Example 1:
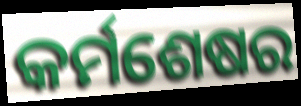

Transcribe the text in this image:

କର୍ମଶେଷର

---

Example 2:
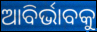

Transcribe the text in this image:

ଆବିର୍ଭାବକୁ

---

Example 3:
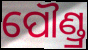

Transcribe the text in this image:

ପୌଣ୍ଡ୍ର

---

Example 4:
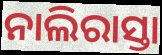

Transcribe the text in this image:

ନାଲିରାସ୍ତା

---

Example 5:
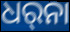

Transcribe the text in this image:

ଧର୍‌ନା